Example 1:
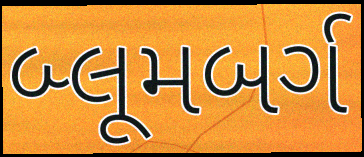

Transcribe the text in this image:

બ્લૂમબર્ગ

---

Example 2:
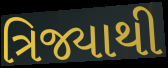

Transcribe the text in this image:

ત્રિજ્યાથી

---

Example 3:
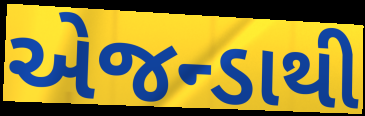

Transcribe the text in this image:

એજન્ડાથી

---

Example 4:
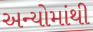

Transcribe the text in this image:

અન્યોમાંથી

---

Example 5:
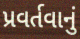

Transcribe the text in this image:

પ્રવર્તવાનું